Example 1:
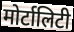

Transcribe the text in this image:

मोर्टालिटी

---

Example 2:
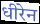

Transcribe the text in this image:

धीरेन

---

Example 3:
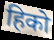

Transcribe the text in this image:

हिको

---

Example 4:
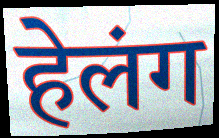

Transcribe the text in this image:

हेलंग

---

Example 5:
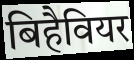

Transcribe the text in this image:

बिहैवियर